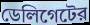
ডেলিগেটের